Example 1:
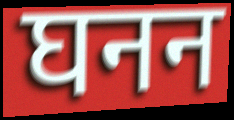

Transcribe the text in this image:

घनन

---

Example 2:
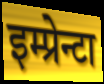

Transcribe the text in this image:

इम्प्रेन्टा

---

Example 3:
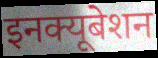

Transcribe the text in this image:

इनक्यूबेशन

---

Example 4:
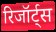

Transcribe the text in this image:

रिजॉर्ट्स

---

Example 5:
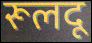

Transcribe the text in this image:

रूलदू